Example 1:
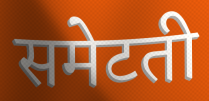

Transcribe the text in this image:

समेटती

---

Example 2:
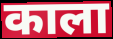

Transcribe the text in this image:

काला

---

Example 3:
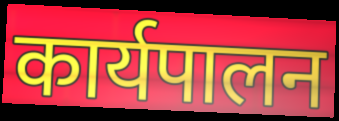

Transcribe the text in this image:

कार्यपालन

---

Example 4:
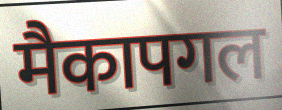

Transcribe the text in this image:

मैकापगल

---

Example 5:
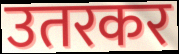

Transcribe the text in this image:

उतरकर